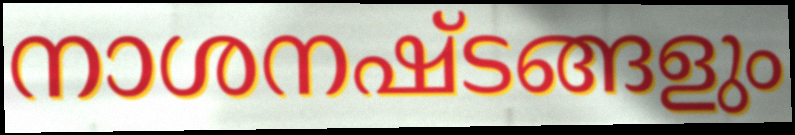
നാശനഷ്ടങ്ങളും